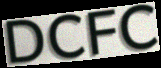
DCFC